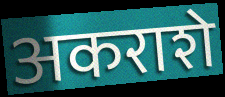
अकराशे